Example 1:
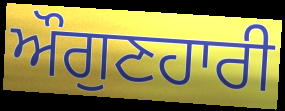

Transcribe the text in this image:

ਔਗੁਣਹਾਰੀ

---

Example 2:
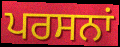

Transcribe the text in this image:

ਪਰਸਨਾਂ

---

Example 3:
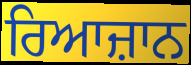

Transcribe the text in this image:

ਰਿਆਜ਼ਾਨ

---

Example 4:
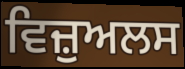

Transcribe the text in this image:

ਵਿਜ਼ੁਅਲਸ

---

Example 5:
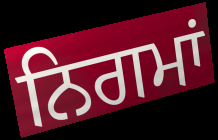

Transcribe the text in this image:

ਨਿਗਮਾਂ